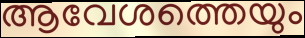
ആവേശത്തെയും